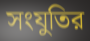
সংযুতির